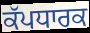
ਕੱਪਧਾਰਕ